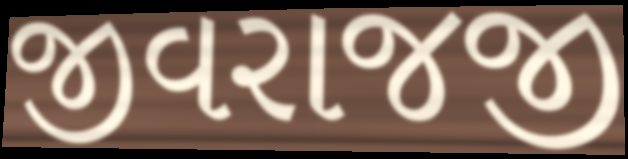
જીવરાજજી